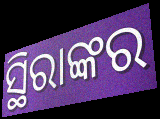
ସ୍ଥିରାଙ୍କର